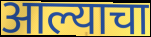
आल्‍याचा